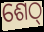
ଶେଠ୍